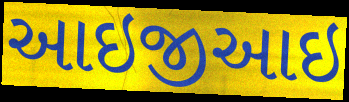
આઇજીઆઇ